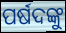
ପର୍ଷଦଙ୍କୁ